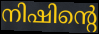
നിഷിന്റെ